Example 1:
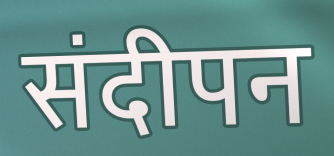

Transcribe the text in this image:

संदीपन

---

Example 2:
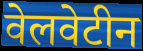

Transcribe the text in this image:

वेलवेटीन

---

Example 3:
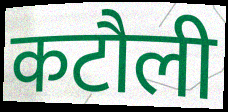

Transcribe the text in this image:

कटौली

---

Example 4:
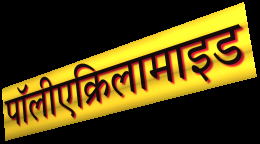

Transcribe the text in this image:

पॉलीएक्रिलामाइड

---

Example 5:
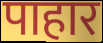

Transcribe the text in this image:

पाहार